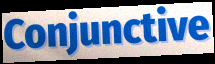
Conjunctive